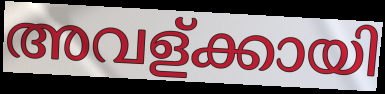
അവള്ക്കായി